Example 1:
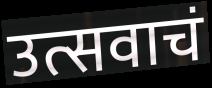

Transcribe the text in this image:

उत्सवाचं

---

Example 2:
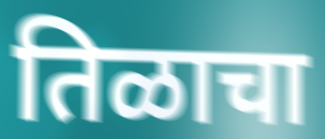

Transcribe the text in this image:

तिळाचा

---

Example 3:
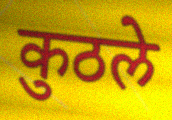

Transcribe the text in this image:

कुठले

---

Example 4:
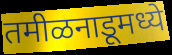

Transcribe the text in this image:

तमीळनाडूमध्ये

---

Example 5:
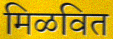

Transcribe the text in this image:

मिळवित